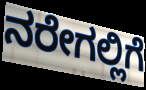
ನರೇಗಲ್ಲಿಗೆ